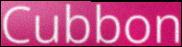
Cubbon